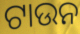
ଟାଉନ